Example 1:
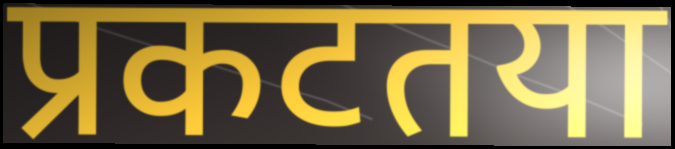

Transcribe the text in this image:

प्रकटतया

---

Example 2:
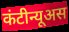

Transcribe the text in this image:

कंटीन्यूअस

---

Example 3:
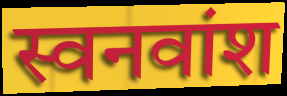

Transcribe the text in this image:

स्वनवांश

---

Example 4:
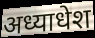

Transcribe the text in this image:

अध्याधेश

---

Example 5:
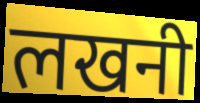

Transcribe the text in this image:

लखनी